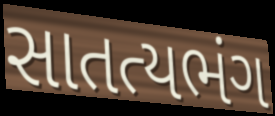
સાતત્યભંગ